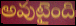
అవుటైంది